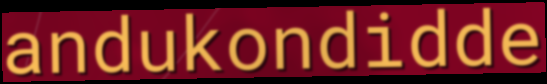
andukondidde